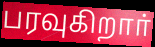
பரவுகிறார்